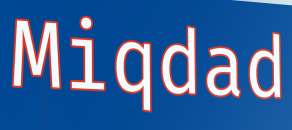
Miqdad